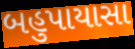
બહુપાયાસા